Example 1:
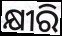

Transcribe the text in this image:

କ୍ଷୀରି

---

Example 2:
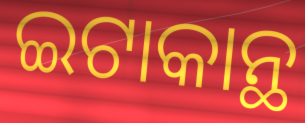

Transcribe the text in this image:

ଇଟାକାନ୍ଥ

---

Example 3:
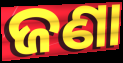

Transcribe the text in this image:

ଜଣା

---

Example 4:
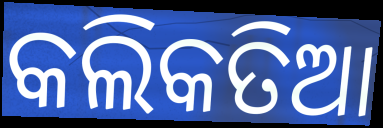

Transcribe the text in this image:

କଲିକତିଆ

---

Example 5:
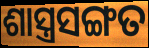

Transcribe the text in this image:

ଶାସ୍ତ୍ରସଙ୍ଗତ